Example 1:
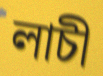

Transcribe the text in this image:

লাচী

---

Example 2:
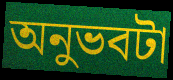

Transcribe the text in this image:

অনুভবটা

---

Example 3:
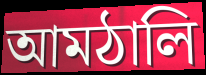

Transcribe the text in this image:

আমঠালি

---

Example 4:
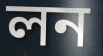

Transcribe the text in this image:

লন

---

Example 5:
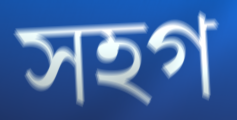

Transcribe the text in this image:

সহগ